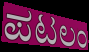
ಪಟಲಂ